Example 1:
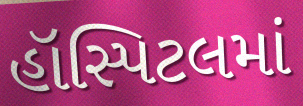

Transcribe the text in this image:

હૉસ્પિટલમાં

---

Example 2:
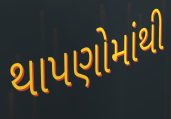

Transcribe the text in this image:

થાપણોમાંથી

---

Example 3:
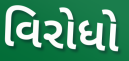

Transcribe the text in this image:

વિરોધો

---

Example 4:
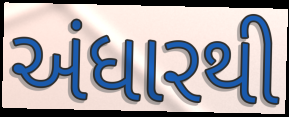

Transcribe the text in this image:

અંધારથી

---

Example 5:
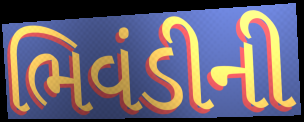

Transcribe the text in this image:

ભિવંડીની